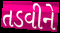
તડવીને